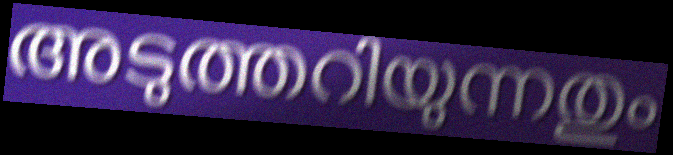
അടുത്തറിയുന്നതും